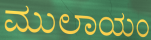
ಮುಲಾಯಂ